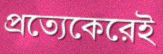
প্রত্যেকেরেই